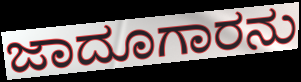
ಜಾದೂಗಾರನು